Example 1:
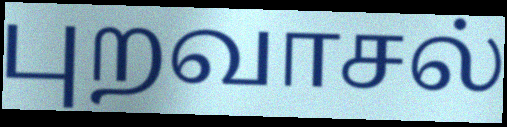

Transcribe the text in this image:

புறவாசல்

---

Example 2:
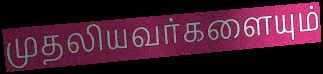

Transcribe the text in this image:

முதலியவர்களையும்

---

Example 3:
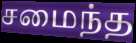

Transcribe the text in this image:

சமைந்த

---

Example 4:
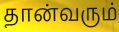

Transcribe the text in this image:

தான்வரும்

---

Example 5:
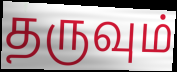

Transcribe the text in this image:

தருவும்